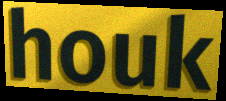
houk